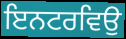
ਇਨਟਰਵਿਉ